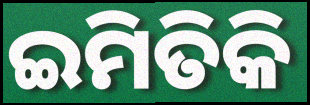
ଇମିତିକି